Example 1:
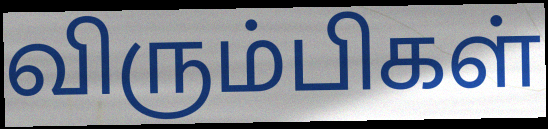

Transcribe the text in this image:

விரும்பிகள்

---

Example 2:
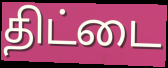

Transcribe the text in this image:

திட்டை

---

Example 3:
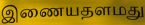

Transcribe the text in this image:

இணையதளமது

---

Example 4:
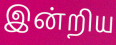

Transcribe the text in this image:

இன்றிய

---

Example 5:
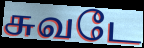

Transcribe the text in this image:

சுவடே